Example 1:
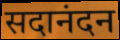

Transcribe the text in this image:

सदानंदन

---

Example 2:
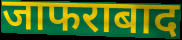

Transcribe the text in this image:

जाफराबाद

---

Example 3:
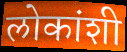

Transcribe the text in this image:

लोकांशी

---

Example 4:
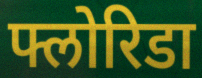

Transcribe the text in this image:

फ्लोरिडा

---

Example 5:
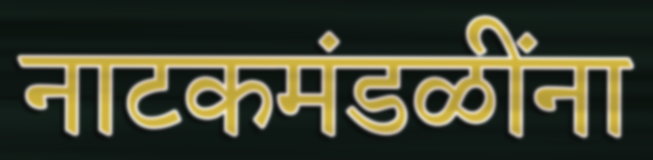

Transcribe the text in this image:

नाटकमंडळींना